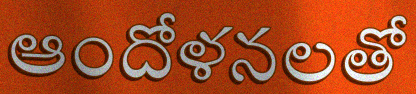
ఆందోళనలతో